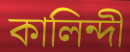
কালিন্দী